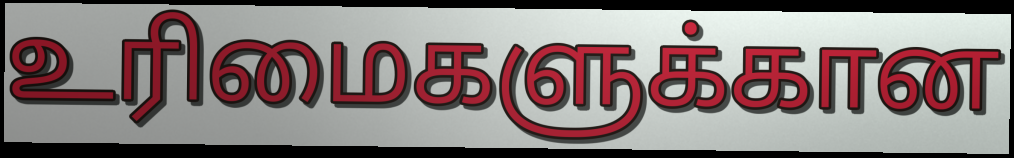
உரிமைகளுக்கான